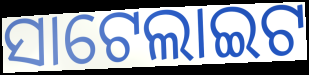
ସାଟେଲାଇଟ